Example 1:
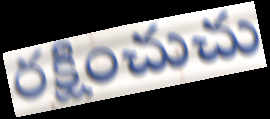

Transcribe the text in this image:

రక్షించుచు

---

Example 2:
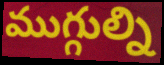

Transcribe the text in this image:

ముగ్గుల్ని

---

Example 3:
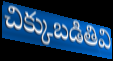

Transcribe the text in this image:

చిక్కుబడితివి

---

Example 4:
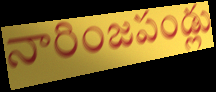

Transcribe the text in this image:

నారింజపండ్లు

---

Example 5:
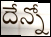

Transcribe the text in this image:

దేన్నో